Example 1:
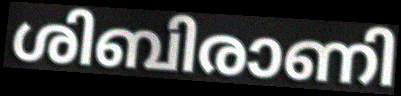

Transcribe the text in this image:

ശിബിരാണി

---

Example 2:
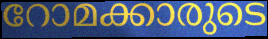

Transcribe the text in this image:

റോമക്കാരുടെ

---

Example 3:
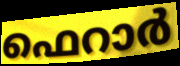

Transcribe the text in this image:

ഫെറാർ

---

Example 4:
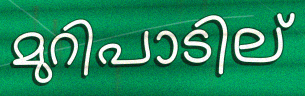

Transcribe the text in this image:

മുറിപാടില്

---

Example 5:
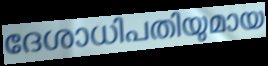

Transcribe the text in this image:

ദേശാധിപതിയുമായ